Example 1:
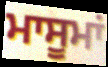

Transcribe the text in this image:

ਮਾਸੂਮਾਂ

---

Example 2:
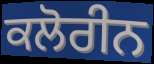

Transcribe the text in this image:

ਕਲੋਰੀਨ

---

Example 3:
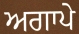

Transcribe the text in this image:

ਅਗਾਪੇ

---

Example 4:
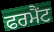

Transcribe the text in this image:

ਫਰਮੈਂਟ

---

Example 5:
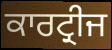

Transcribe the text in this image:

ਕਾਰਟ੍ਰੀਜ